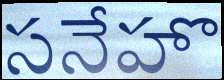
సనేహొ